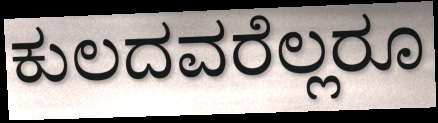
ಕುಲದವರೆಲ್ಲರೂ